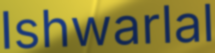
Ishwarlal